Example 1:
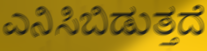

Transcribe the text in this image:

ಎನಿಸಿಬಿಡುತ್ತದೆ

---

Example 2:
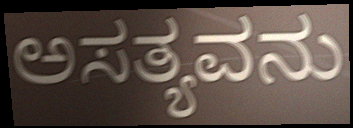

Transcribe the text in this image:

ಅಸತ್ಯವನು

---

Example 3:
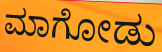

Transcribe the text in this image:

ಮಾಗೋಡು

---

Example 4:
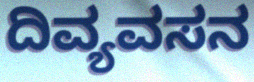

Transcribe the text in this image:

ದಿವ್ಯವಸನ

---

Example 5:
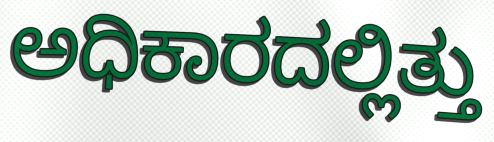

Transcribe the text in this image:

ಅಧಿಕಾರದಲ್ಲಿತ್ತು